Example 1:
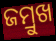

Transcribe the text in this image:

ଜମ୍ରୁଖ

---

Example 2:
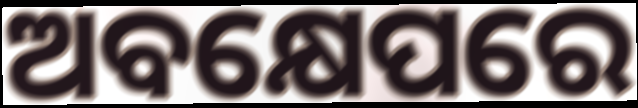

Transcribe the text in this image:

ଅବକ୍ଷେପରେ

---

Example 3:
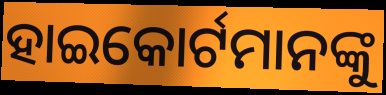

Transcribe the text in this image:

ହାଇକୋର୍ଟମାନଙ୍କୁ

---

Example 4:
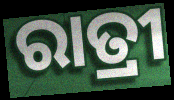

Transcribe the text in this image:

ରାତ୍ରୀ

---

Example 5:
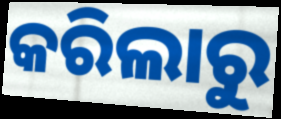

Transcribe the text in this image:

କରିଲାରୁ